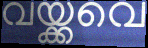
വയ്ക്കവെ